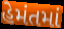
હેમંતમાં